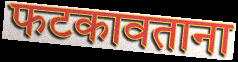
फटकावताना